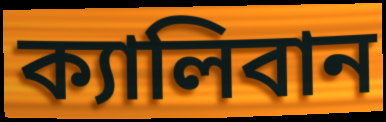
ক্যালিবান